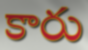
కారు